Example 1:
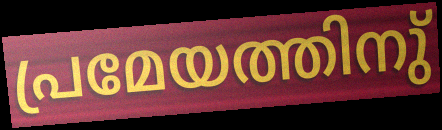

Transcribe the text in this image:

പ്രമേയത്തിനു്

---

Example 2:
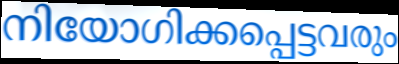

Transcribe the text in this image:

നിയോഗിക്കപ്പെട്ടവരും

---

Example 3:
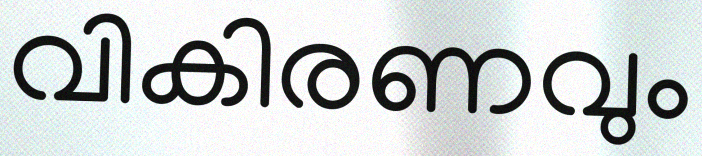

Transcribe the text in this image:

വികിരണവും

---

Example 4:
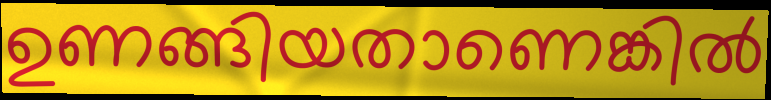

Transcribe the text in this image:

ഉണങ്ങിയതാണെങ്കിൽ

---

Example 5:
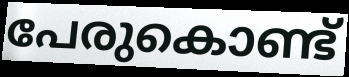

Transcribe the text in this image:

പേരുകൊണ്ട്